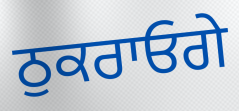
ਠੁਕਰਾਓਗੇ